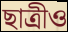
ছাত্রীও